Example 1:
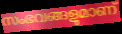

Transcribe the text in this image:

സംഭവങ്ങളുമാണ്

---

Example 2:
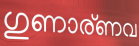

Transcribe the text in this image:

ഗുണാര്ണവ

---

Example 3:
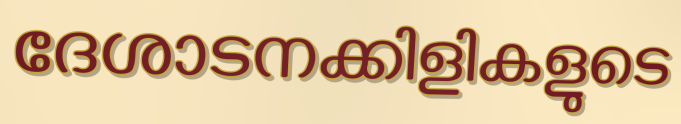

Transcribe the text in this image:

ദേശാടനക്കിളികളുടെ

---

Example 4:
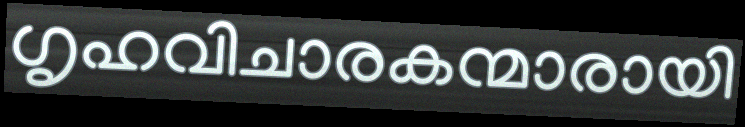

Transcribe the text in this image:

ഗൃഹവിചാരകന്മാരായി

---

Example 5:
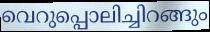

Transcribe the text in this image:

വെറുപ്പൊലിച്ചിറങ്ങും